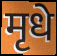
मृधे